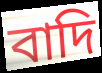
বাদি